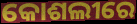
କୋଶଲୀରେ